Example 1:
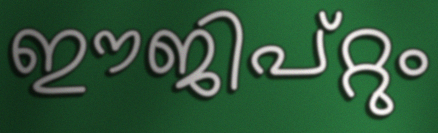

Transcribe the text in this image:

ഈജിപ്റ്റും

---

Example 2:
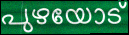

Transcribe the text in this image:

പുഴയോട്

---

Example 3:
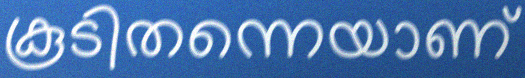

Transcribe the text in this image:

കൂടിതന്നെയാണ്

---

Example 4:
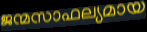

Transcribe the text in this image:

ജന്മസാഫല്യമായ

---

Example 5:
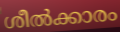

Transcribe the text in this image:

ശീൽക്കാരം